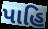
પાહિ